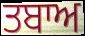
ਤਬਾਅ